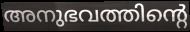
അനുഭവത്തിന്റെ